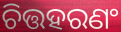
ଚିତ୍ତହରଣଂ